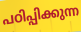
പഠിപ്പിക്കുന്ന